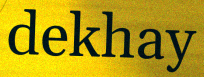
dekhay